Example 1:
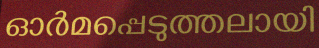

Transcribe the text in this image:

ഓർമപ്പെടുത്തലായി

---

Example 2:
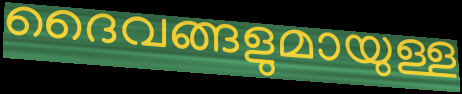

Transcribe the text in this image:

ദൈവങ്ങളുമായുള്ള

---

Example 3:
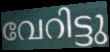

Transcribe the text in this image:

വേറിട്ടു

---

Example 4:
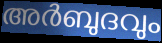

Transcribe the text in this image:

അർബുദവും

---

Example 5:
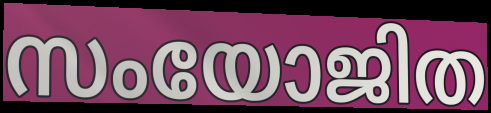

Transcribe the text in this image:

സംയോജിത